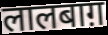
लालबाग़